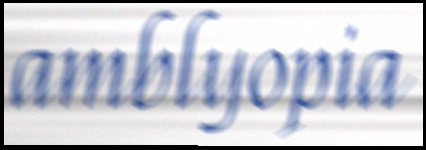
amblyopia